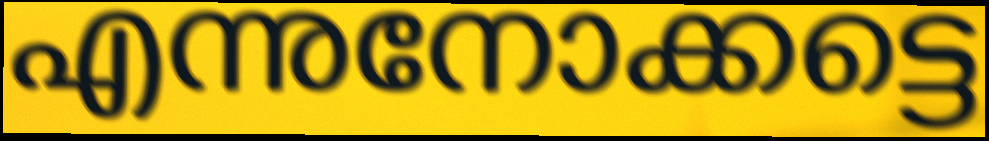
എന്നുനോക്കട്ടെ